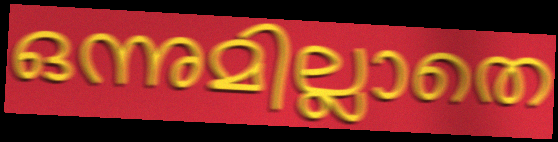
ഒന്നുമില്ലാതെ